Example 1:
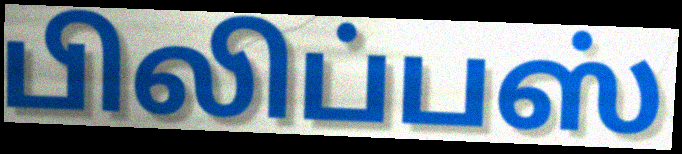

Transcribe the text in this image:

பிலிப்பஸ்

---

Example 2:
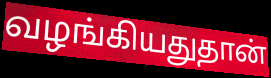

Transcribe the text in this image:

வழங்கியதுதான்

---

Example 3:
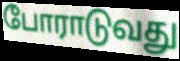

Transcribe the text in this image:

போராடுவது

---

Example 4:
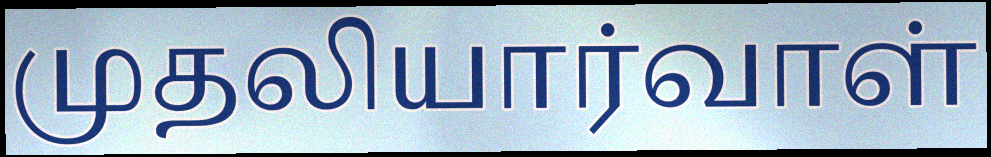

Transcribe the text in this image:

முதலியார்வாள்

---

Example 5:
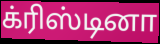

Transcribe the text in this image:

க்ரிஸ்டினா